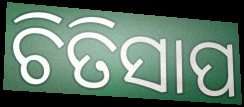
ଚିତିସାପ